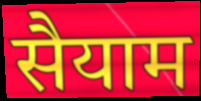
सैयाम